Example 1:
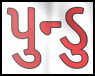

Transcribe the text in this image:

પુન્ડુ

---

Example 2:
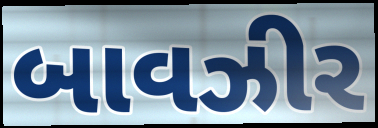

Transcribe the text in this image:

બાવઝીર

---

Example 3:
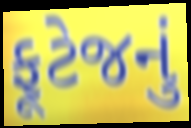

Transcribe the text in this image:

ફૂટેજનું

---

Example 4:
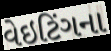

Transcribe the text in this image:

વેઇટિંગના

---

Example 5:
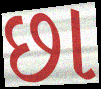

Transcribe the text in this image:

છા